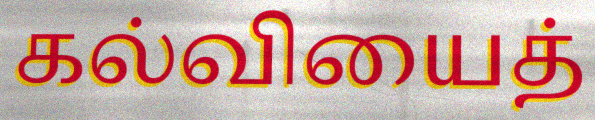
கல்வியைத்